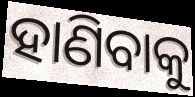
ହାଣିବାକୁ